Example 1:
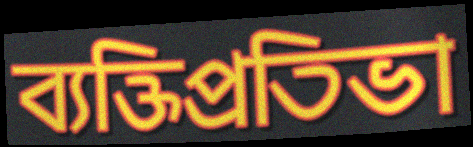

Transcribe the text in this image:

ব্যক্তিপ্রতিভা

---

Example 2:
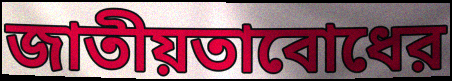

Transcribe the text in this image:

জাতীয়তাবোধের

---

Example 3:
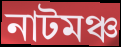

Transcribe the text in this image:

নাটমঞ্চ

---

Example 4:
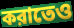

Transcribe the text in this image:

করাতেও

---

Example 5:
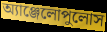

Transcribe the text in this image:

অ্যাঞ্জেলোপুলোস